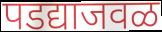
पडद्याजवळ